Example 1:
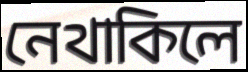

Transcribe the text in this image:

নেথাকিলে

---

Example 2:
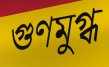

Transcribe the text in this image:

গুণমুগ্ধ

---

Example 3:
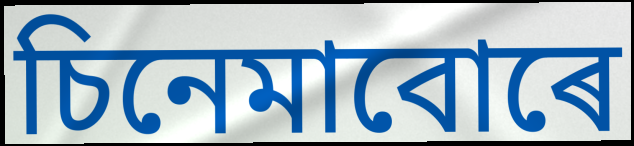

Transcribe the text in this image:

চিনেমাবোৰে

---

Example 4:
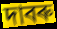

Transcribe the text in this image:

দাবৰু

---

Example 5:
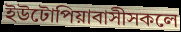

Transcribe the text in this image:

ইউটোপিয়াবাসীসকলে